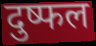
दुष्फल